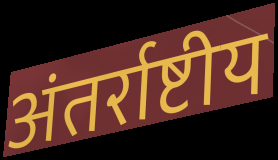
अंतर्राष्टीय